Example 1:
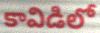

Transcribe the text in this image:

కావిడిలో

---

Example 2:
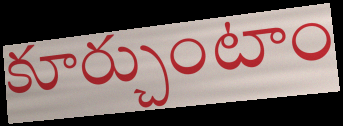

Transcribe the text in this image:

కూర్చుంటాం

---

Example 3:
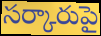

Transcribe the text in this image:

సర్కారుపై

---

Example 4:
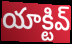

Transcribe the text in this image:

యాక్టివ్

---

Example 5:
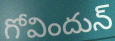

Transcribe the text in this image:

గోవిందున్